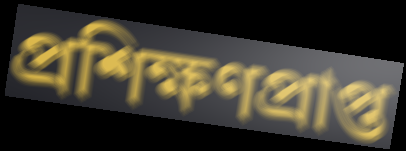
প্ৰশিক্ষণপ্ৰাপ্ত